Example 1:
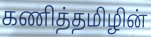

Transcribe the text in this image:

கணித்தமிழின்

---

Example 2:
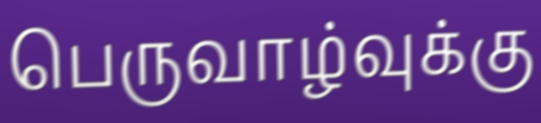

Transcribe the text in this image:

பெருவாழ்வுக்கு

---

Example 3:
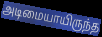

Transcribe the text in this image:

அடிமையாயிருந்த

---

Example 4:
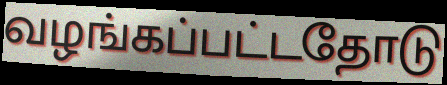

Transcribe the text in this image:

வழங்கப்பட்டதோடு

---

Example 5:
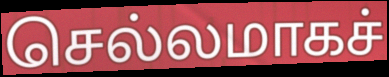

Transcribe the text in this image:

செல்லமாகச்